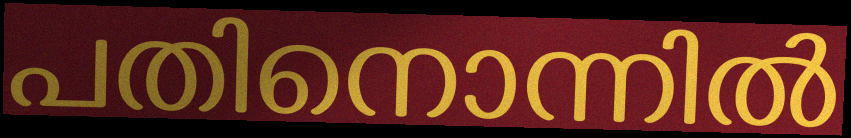
പതിനൊന്നിൽ